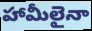
హామీలైనా